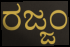
ರಜ್ಜಂ